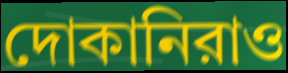
দোকানিরাও